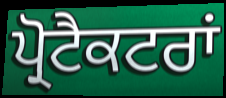
ਪ੍ਰੋਟੈਕਟਰਾਂ